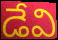
డేవి